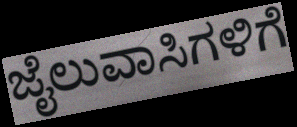
ಜೈಲುವಾಸಿಗಳಿಗೆ